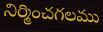
నిర్మించగలము